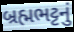
બ્રહ્મભટ્ટનું